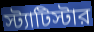
স্ট্যাটিস্টার